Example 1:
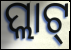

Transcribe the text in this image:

ପ୍ଲାଟ୍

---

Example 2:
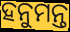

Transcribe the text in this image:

ହନୁମନ୍ତ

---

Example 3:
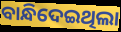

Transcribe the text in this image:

ବାନ୍ଧିଦେଇଥିଲା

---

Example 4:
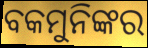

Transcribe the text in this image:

ବକମୁନିଙ୍କର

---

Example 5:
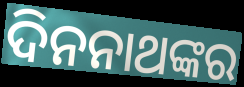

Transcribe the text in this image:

ଦିନନାଥଙ୍କର